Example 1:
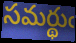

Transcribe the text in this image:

సమర్థుఁ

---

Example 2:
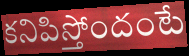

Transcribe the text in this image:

కనిపిస్తోందంటే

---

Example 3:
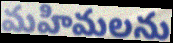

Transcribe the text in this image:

మహిమలను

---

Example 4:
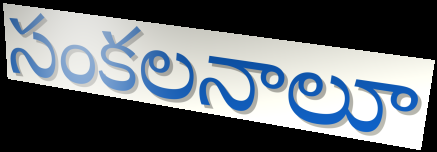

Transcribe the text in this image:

సంకలనాలూ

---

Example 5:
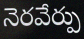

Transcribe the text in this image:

నెరవేర్పు